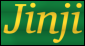
Jinji